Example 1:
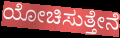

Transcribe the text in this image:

ಯೋಚಿಸುತ್ತೇನೆ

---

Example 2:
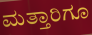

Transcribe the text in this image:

ಮತ್ತಾರಿಗೂ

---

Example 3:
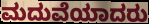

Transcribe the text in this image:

ಮದುವೆಯಾದರು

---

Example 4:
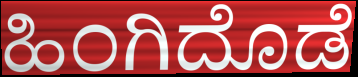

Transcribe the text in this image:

ಹಿಂಗಿದೊಡೆ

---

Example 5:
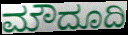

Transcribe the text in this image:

ಮೌದೂದಿ